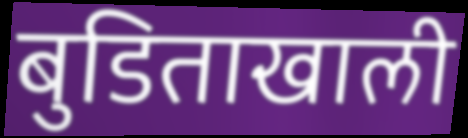
बुडिताखाली